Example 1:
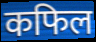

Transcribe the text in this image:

कफिल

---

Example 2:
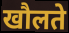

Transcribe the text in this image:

खौलते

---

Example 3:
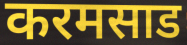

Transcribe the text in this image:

करमसाड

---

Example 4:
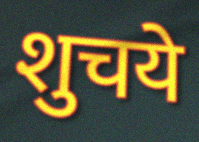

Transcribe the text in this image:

शुचये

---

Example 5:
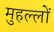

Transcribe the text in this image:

मुहल्लों